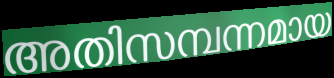
അതിസമ്പന്നമായ